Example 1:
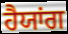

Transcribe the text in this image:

ਹੈਯਾਂਗ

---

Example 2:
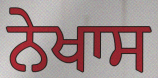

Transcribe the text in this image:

ਨੇਖਾਸ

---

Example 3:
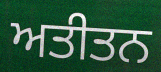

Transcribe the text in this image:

ਅਤੀਤਨ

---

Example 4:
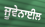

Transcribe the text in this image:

ਜੂਵੇਨਾਈਲ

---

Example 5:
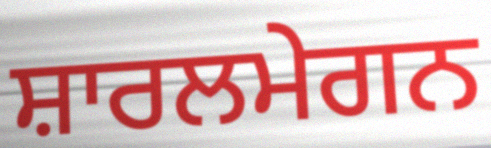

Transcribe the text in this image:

ਸ਼ਾਰਲਮੇਗਨ